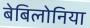
बेबिलोनिया